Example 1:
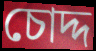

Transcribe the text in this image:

চোদ্দ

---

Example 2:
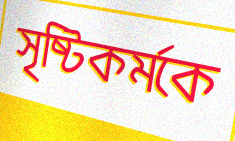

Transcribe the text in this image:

সৃষ্টিকর্মকে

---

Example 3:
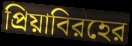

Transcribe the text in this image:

প্রিয়াবিরহের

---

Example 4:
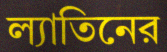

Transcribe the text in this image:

ল্যাতিনের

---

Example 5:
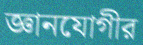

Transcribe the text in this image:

জ্ঞানযোগীর